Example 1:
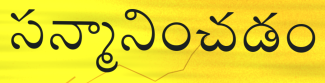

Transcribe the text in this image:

సన్మానించడం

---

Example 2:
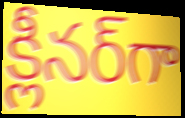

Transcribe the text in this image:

క్లీనర్‌గా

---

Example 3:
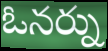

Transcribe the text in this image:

ఓనర్ను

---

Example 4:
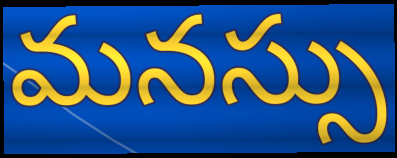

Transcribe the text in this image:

మనస్సు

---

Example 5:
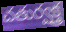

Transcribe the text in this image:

చతుర్వక్త్ర